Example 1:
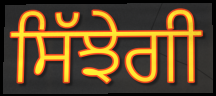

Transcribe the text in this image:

ਸਿੱਝੇਗੀ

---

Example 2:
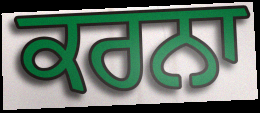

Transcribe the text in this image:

ਕਰਨਾ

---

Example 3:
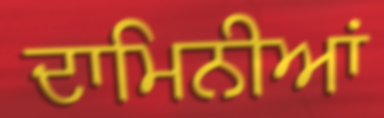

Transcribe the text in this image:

ਦਾਮਿਨੀਆਂ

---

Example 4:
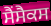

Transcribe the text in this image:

ਸੈਂਸੈਕਸ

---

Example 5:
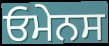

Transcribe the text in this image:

ਓਮੇਨਸ